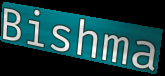
Bishma